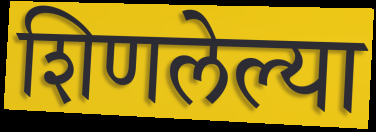
शिणलेल्या